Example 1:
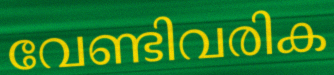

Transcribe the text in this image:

വേണ്ടിവരിക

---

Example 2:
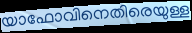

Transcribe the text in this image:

യാഫോവിനെതിരെയുള്ള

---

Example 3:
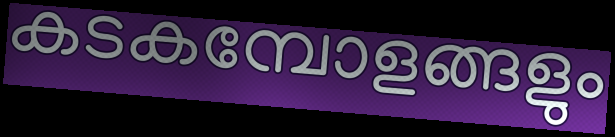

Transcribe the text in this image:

കടകമ്പോളങ്ങളും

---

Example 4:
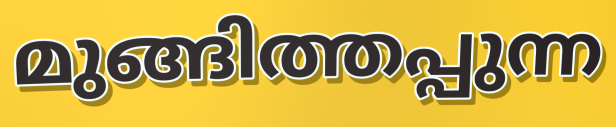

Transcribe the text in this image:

മുങ്ങിത്തപ്പുന്ന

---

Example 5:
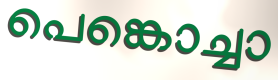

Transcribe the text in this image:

പെങ്കൊച്ചാ